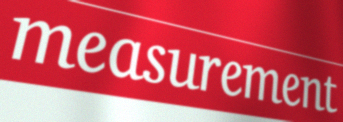
measurement